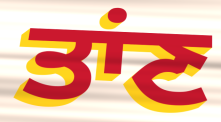
ਤਾਂਣ